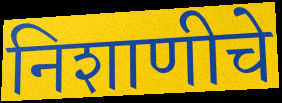
निशाणीचे